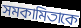
সমকামিতাকে